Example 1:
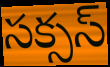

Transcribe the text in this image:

సక్సస్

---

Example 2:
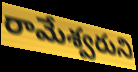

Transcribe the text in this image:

రామేశ్వరుని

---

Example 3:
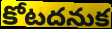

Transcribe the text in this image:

కోటదనుక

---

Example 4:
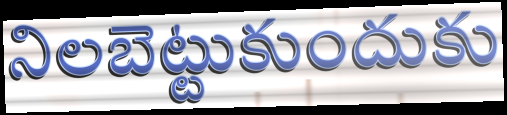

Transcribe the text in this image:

నిలబెట్టుకుందుకు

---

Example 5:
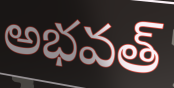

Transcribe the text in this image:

అభవత్